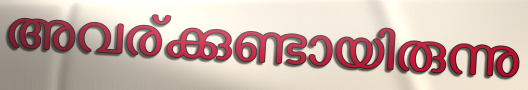
അവര്ക്കുണ്ടായിരുന്നു